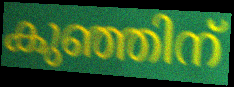
കുഞ്ഞിന്